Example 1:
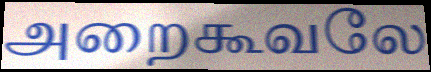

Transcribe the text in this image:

அறைகூவலே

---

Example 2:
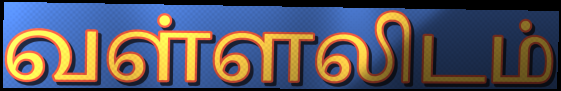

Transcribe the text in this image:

வள்ளலிடம்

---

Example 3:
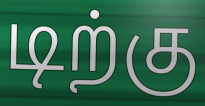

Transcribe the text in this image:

டிற்கு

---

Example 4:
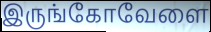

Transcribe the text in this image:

இருங்கோவேளை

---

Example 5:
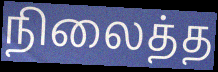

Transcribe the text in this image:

நிலைத்த